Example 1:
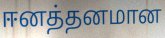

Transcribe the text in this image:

ஈனத்தனமான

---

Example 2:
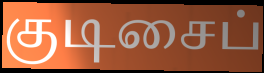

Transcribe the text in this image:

குடிசைப்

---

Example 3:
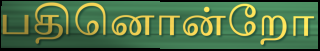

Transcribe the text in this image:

பதினொன்றோ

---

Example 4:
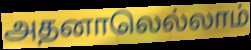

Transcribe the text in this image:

அதனாலெல்லாம்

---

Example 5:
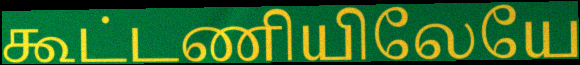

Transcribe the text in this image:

கூட்டணியிலேயே